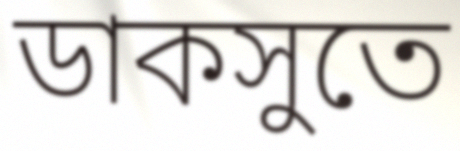
ডাকসুতে